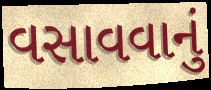
વસાવવાનું